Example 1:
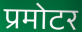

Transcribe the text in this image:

प्रमोटर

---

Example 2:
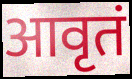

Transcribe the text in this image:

आवृतं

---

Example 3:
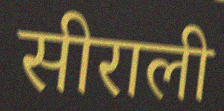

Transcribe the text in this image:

सीराली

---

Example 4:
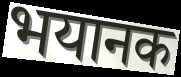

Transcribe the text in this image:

भयानक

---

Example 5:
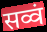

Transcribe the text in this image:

सव्वं